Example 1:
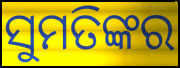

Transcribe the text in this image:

ସୁମତିଙ୍କର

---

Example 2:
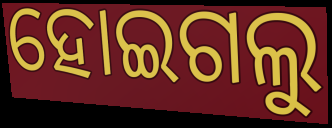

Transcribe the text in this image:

ହୋଇଗଲୁ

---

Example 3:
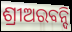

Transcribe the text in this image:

ଶ୍ରୀଅରବନ୍ଦି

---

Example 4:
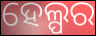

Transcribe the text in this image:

ହେଲ୍ପର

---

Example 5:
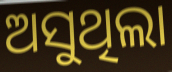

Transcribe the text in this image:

ଅସୁଥିଲା